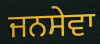
ਜਨਸੇਵਾ